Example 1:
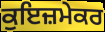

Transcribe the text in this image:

ਕੁਇਜ਼ਮੇਕਰ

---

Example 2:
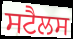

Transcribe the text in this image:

ਸਟੈਲਸ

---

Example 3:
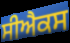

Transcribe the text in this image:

ਸੀਐਕਸ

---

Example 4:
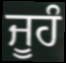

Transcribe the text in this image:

ਜੂਹੰ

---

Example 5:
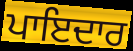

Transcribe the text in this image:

ਪਾਇਦਾਰ